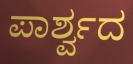
ಪಾರ್ಶ್ವದ